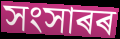
সংসাৰৰ